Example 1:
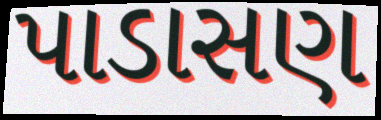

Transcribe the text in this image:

પાડાસણ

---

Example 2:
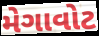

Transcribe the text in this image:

મેગાવોટ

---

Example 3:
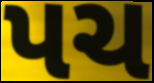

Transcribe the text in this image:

પચ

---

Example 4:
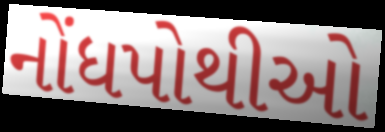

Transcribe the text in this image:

નોંધપોથીઓ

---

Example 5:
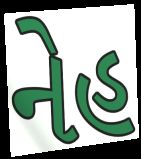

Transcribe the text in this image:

નેહ